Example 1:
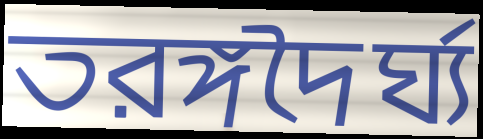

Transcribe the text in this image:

তরঙ্গদৈর্ঘ্য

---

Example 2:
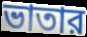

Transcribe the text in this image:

ভাতার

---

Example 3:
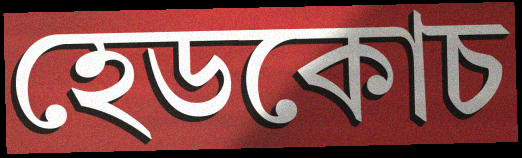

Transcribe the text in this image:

হেডকোচ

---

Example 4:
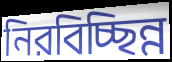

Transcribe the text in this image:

নিরবিচ্ছিন্ন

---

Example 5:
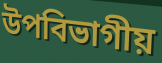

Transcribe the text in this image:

উপবিভাগীয়